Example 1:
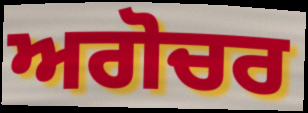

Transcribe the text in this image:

ਅਗੋਚਰ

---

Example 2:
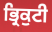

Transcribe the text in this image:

ਭ੍ਰਿਕੁਟੀ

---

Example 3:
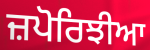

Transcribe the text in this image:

ਜ਼ਪੋਰਿਝੀਆ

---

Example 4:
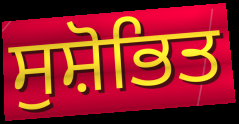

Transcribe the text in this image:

ਸੁਸ਼ੋਭਿਤ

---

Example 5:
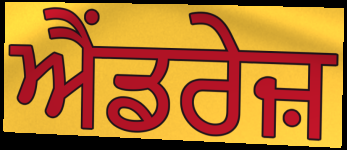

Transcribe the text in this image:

ਐਂਡਰੇਜ਼